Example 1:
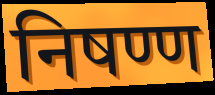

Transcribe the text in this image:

निषण्ण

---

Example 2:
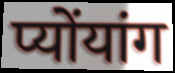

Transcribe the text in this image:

प्योंयांग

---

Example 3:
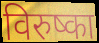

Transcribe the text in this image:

विरुष्का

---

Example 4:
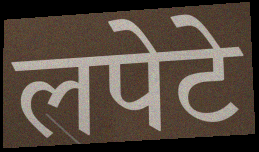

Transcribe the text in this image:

लपेटे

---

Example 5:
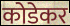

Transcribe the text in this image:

कोडेकर